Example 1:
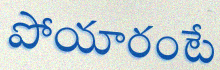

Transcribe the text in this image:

పోయారంటే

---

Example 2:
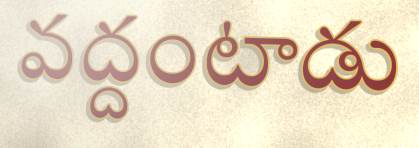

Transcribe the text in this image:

వద్దంటాడు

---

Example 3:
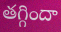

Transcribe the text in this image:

తగ్గిందా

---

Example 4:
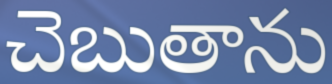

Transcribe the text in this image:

చెబుతాను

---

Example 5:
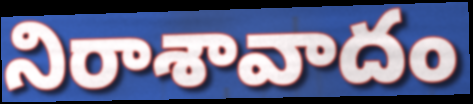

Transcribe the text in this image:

నిరాశావాదం